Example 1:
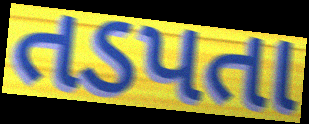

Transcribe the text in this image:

તડપતા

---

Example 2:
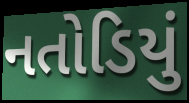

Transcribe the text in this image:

નતોડિયું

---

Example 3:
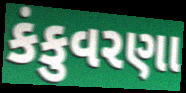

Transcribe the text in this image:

કંકુવરણા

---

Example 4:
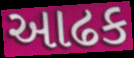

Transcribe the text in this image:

આઢક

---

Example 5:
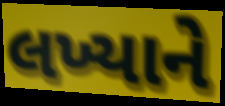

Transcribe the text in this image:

લખ્યાને